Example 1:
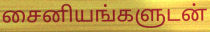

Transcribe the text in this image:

சைனியங்களுடன்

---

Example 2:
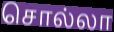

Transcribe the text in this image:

சொல்லா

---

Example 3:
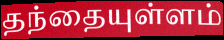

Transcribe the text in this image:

தந்தையுள்ளம்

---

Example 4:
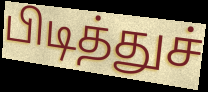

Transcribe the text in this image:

பிடித்துச்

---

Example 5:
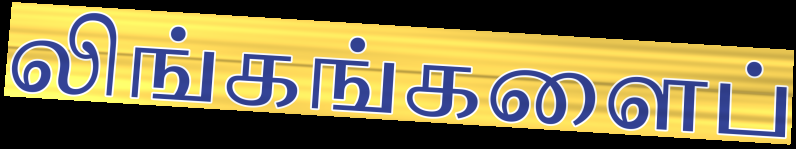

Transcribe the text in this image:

லிங்கங்களைப்